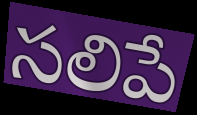
సలిపే